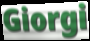
Giorgi